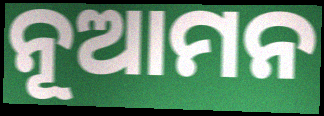
ନୂଆମନ